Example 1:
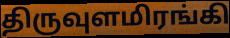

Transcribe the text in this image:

திருவுளமிரங்கி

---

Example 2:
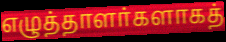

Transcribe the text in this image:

எழுத்தாளர்களாகத்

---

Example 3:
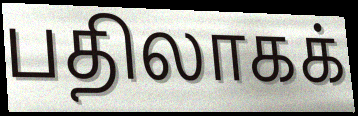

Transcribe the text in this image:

பதிலாகக்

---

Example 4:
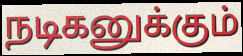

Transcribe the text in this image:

நடிகனுக்கும்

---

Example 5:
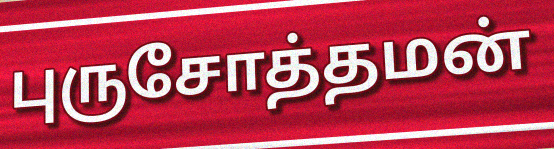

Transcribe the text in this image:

புருசோத்தமன்